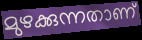
മുഴക്കുന്നതാണ്